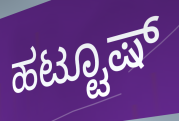
ಹಟ್ಟೂಷ್